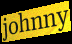
johnny